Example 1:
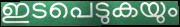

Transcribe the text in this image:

ഇടപെടുകയും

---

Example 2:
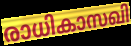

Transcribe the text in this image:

രാധികാസഖി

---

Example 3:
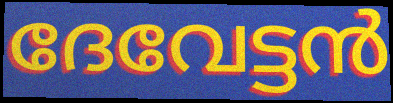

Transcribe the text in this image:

ദേവേട്ടൻ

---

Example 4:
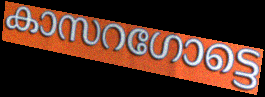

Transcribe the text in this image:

കാസറഗോട്ടെ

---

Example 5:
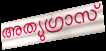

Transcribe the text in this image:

അത്യുഗ്രാസ്